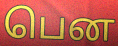
பென